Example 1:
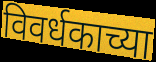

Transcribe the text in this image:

विवर्धकाच्या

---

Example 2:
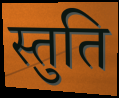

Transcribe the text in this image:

स्तुति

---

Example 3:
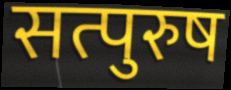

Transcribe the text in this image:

सत्पुरुष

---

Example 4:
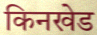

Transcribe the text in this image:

किनखेड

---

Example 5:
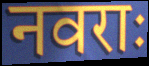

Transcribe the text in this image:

नवराः